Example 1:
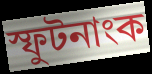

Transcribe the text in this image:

স্ফুটনাংক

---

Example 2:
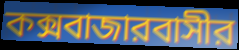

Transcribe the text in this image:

কক্সবাজারবাসীর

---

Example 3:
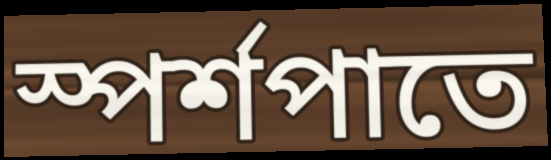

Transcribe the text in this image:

স্পর্শপাতে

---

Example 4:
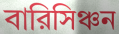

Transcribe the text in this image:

বারিসিঞ্চন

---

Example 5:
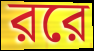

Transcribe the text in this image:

ররে